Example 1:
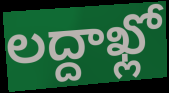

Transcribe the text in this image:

లద్దాఖ్లో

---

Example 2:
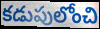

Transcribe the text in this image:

కడుపులోంచి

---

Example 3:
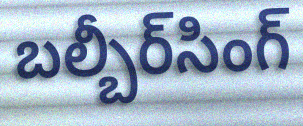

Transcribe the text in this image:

బల్బీర్‌సింగ్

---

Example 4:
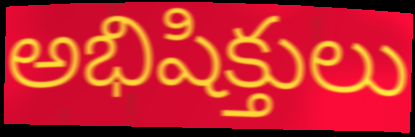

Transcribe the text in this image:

అభిషిక్తులు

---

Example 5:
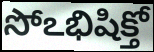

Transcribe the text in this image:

సోఽభిషిక్తో